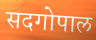
सदगोपाल